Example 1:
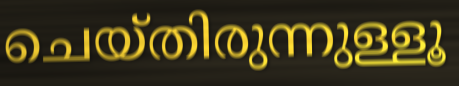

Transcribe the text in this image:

ചെയ്തിരുന്നുള്ളൂ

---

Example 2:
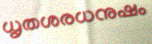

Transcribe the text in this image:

ധൃതശരധനുഷം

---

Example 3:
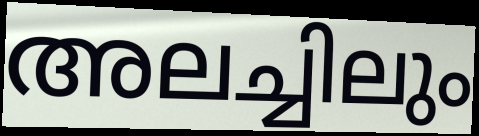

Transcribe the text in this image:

അലച്ചിലും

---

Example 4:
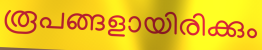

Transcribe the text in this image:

രൂപങ്ങളായിരിക്കും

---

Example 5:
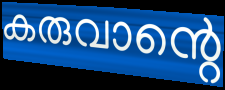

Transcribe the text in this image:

കരുവാന്റെ